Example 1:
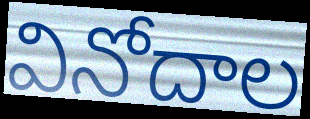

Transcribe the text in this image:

వినోదాల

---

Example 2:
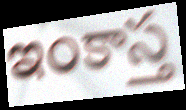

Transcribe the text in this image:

ఇంకాస్త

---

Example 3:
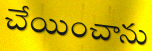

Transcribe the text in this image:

చేయించాను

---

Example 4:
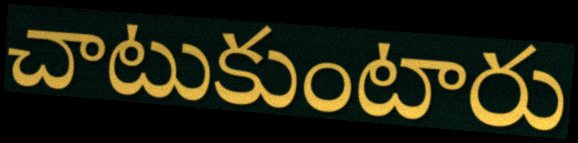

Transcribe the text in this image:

చాటుకుంటారు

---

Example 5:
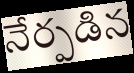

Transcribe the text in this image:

నేర్పడిన